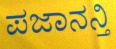
ಪಜಾನನ್ತಿ